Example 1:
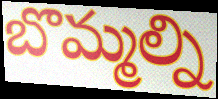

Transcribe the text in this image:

బొమ్మల్ని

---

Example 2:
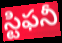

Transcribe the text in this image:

స్టిఫనీ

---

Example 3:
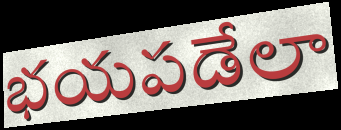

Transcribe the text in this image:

భయపడేలా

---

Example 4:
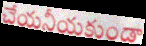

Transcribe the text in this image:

చేయనీయకుండా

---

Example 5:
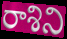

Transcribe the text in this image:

రాశిని